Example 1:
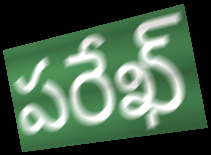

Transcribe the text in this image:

పరేఖ్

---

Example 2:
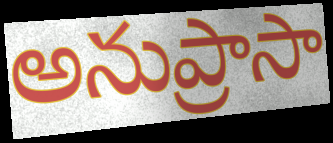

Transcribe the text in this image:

అనుప్రాసా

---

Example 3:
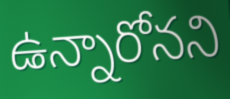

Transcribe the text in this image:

ఉన్నారోనని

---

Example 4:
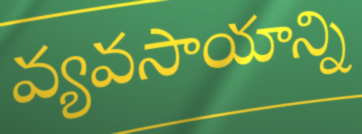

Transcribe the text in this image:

వ్యవసాయాన్ని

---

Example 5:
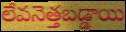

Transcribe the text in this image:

లేవనెత్తబడ్డాయి